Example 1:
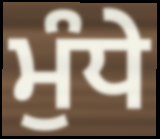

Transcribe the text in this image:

ਮੁੰਧੇ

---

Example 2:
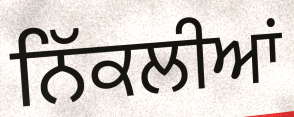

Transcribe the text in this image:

ਨਿੱਕਲੀਆਂ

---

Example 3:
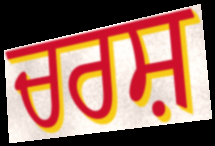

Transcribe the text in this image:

ਚਰਸ਼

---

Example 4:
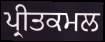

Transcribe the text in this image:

ਪ੍ਰੀਤਕਮਲ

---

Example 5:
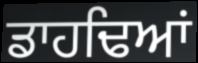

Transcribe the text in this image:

ਡਾਹਢਿਆਂ